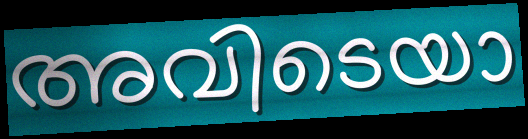
അവിടെയാ